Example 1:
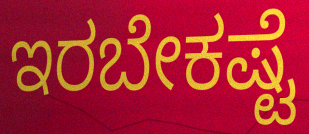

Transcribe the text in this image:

ಇರಬೇಕಷ್ಟೆ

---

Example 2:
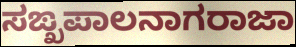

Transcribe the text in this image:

ಸಙ್ಖಪಾಲನಾಗರಾಜಾ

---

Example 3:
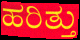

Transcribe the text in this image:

ಹರಿತ್ತು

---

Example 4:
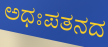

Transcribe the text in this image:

ಅಧಃಪತನದ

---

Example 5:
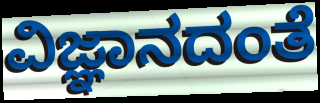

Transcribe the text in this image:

ವಿಜ್ಞಾನದಂತೆ